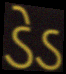
ડેડ